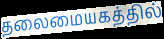
தலைமையகத்தில்